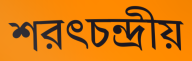
শরৎচন্দ্রীয়